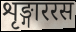
शृङ्गाररस